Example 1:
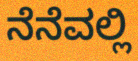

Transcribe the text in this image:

ನೆನೆವಲ್ಲಿ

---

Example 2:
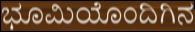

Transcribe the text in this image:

ಭೂಮಿಯೊಂದಿಗಿನ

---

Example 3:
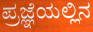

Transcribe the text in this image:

ಪ್ರಜ್ಞೆಯಲ್ಲಿನ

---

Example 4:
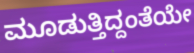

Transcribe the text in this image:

ಮೂಡುತ್ತಿದ್ದಂತೆಯೇ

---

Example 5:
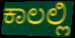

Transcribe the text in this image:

ಕಾಲಲ್ಲಿ